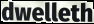
dwelleth